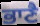
ਭਾਣੈ